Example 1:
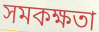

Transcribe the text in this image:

সমকক্ষতা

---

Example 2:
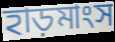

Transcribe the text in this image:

হাড়মাংস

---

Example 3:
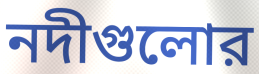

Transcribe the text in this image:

নদীগুলোর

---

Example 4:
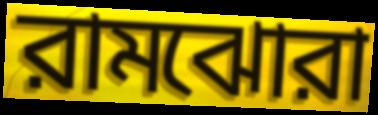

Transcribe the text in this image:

রামঝোরা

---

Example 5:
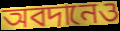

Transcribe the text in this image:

অবদানেও